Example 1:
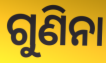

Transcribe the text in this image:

ଗୁଣିନା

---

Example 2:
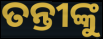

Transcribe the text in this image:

ତନ୍ତୀଙ୍କୁ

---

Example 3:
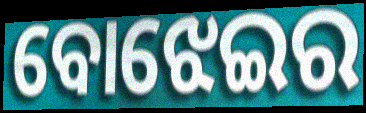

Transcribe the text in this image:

ବୋଝେଇର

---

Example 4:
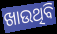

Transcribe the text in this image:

ଖାଉଥିବି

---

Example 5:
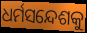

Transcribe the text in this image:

ଧର୍ମସନ୍ଦେଶକୁ